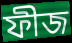
ফীজ